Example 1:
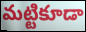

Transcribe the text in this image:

మట్టికూడా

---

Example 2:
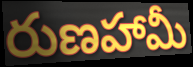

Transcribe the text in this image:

రుణహామీ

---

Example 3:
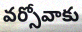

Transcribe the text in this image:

వర్సోవాకు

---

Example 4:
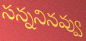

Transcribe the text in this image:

సన్ననినవ్వు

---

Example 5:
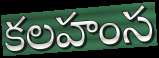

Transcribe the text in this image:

కలహంస